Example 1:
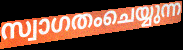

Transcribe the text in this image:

സ്വാഗതംചെയ്യുന്ന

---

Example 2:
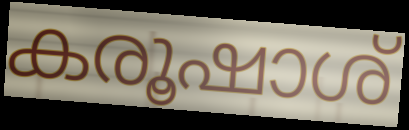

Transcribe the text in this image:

കരൂഷാശ്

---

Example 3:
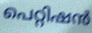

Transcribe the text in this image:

പെറ്റിഷൻ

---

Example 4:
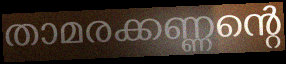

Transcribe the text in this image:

താമരക്കണ്ണന്റെ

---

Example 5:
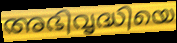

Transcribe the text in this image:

അഭിവൃദ്ധിയെ